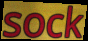
sock